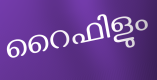
റൈഫിളും